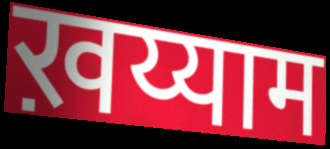
ख़य्याम